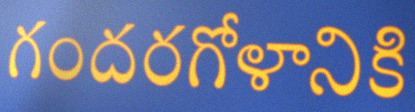
గందరగోళానికి